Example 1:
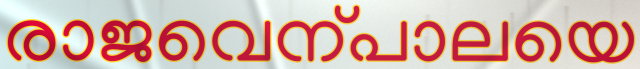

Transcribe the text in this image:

രാജവെന്പാലയെ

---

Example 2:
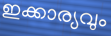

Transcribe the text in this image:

ഇക്കാര്യവും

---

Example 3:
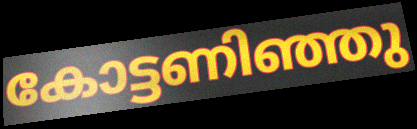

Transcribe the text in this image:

കോട്ടണിഞ്ഞു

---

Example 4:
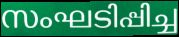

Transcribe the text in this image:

സംഘടിപ്പിച്ച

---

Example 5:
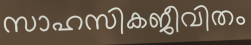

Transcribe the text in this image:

സാഹസികജീവിതം